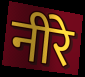
नीरे